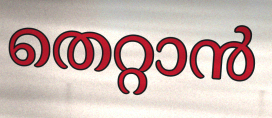
തെറ്റാൻ